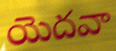
యెదవా